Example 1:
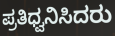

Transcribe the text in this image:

ಪ್ರತಿಧ್ವನಿಸಿದರು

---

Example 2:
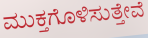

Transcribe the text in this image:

ಮುಕ್ತಗೊಳಿಸುತ್ತೇವೆ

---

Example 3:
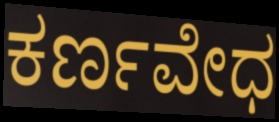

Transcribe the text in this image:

ಕರ್ಣವೇಧ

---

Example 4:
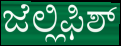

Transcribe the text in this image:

ಜೆಲ್ಲಿಫಿಶ್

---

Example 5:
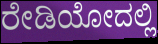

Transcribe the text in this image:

ರೇಡಿಯೋದಲ್ಲಿ